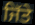
ਜਿੱਤੇ